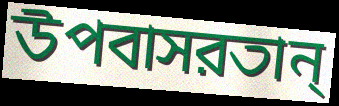
উপবাসরতান্